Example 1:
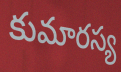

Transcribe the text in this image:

కుమారస్య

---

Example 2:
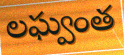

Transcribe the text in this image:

లఘ్వంత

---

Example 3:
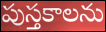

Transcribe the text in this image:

పుస్తకాలను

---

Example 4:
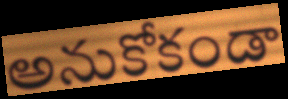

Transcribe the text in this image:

అనుకోకండా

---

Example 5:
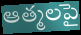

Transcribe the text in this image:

ఆత్మలపై